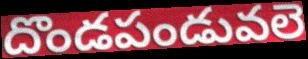
దొండపండువలె